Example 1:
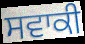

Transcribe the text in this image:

ਸਵਾਕੀ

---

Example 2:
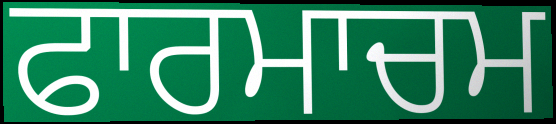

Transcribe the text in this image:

ਫਾਰਮਾਚਮ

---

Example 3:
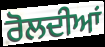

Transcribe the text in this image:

ਰੋਲਦੀਆਂ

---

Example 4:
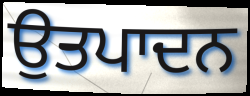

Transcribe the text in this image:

ਉਤਪਾਦਨ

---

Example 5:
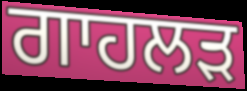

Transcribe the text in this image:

ਗਾਹਲੜ